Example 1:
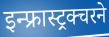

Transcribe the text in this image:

इन्फ्रास्ट्रक्चरने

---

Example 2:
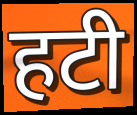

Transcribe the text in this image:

हटी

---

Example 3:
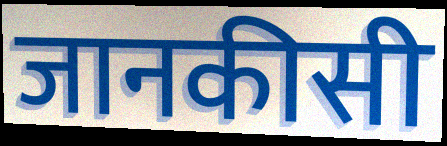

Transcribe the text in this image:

जानकीसी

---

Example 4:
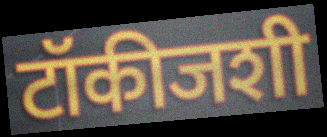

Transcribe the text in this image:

टॉकीजशी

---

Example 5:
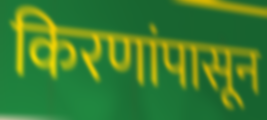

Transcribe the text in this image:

किरणांपासून